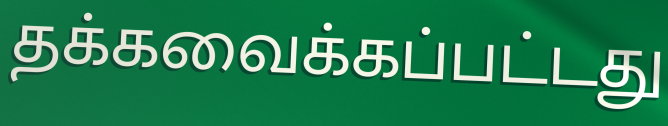
தக்கவைக்கப்பட்டது